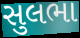
સુલભા